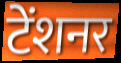
टेंशनर